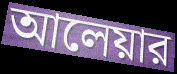
আলেয়ার